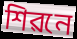
শিৱনে